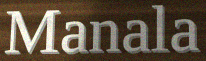
Manala